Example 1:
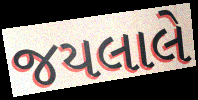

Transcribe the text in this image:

જયલાલે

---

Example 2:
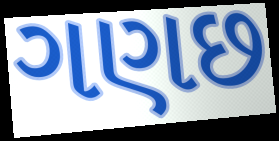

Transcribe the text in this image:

ગણછ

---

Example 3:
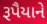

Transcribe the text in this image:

રૂપૈયાને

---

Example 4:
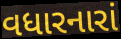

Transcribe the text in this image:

વધારનારાં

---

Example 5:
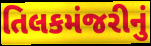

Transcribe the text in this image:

તિલકમંજરીનું